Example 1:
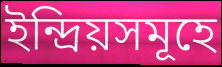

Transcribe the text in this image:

ইন্দ্রিয়সমূহে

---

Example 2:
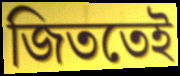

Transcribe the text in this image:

জিততেই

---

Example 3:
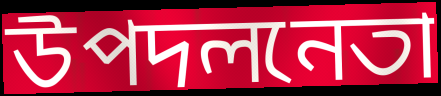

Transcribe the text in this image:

উপদলনেতা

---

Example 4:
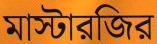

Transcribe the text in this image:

মাস্টারজির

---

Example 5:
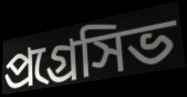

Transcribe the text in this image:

প্রগ্রেসিভ